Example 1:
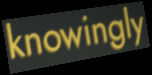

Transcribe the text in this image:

knowingly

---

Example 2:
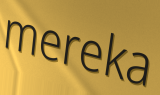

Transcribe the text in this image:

mereka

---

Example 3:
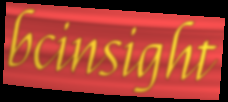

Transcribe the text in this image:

bcinsight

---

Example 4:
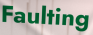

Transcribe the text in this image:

Faulting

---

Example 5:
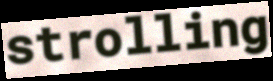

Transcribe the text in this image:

strolling